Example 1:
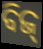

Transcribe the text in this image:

ବିଜ୍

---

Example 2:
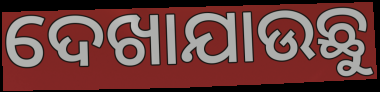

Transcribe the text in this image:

ଦେଖାଯାଉଛୁ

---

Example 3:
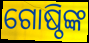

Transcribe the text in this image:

ଗୋଷ୍ଠିଙ୍କ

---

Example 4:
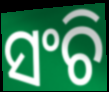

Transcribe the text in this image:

ସଂଚି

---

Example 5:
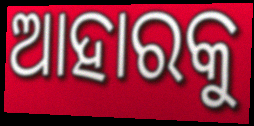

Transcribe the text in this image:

ଆହାରକୁ